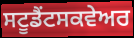
ਸਟੂਡੈਂਟਸਕਵੇਅਰ